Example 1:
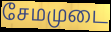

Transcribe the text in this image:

சேமமுடை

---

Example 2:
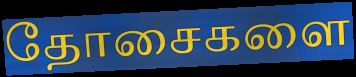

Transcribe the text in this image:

தோசைகளை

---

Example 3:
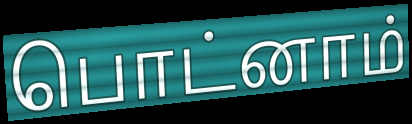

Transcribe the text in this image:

பொட்னாம்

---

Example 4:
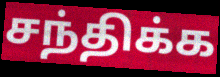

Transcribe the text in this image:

சந்திக்க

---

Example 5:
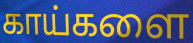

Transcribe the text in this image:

காய்களை